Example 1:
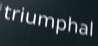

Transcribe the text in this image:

triumphal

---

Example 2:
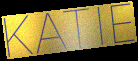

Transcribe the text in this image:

KATIE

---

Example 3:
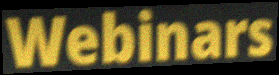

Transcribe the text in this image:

Webinars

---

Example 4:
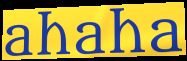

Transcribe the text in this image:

ahaha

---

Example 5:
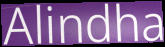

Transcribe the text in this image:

Alindha